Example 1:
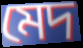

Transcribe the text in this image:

মেদ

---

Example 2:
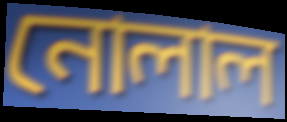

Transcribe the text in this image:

নোলাল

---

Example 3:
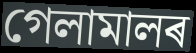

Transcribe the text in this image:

গেলামালৰ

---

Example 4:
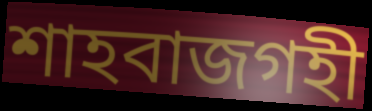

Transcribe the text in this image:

শাহবাজগহী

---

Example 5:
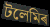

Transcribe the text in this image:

টলেমিৰ